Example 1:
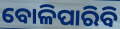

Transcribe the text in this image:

ବୋଳିପାରିବି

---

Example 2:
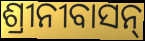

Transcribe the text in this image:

ଶ୍ରୀନୀବାସନ୍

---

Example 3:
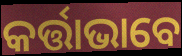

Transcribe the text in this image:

କର୍ତ୍ତାଭାବେ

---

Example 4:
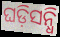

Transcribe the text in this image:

ଘଡ଼ିସନ୍ଧି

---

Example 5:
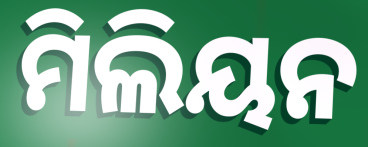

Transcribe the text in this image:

ମିଲିୟନ